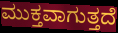
ಮುಕ್ತವಾಗುತ್ತದೆ